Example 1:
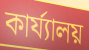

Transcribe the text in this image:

কাৰ্য্যালয়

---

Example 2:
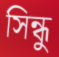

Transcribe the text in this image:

সিন্ধু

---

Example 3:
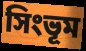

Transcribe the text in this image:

সিংভূম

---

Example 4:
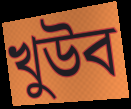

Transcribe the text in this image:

খুউব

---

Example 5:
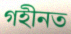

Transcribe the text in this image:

গহীনত